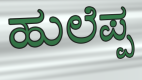
ಹುಲೆಪ್ಪ